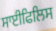
ਸਾਈਫਿਲਿਸ